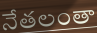
నేతలంతా